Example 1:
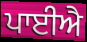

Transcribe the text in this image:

ਪਾਈਐ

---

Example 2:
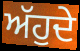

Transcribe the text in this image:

ਅੱਹੁਦੇ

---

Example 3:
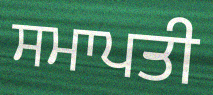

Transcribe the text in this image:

ਸਮਾਪਤੀ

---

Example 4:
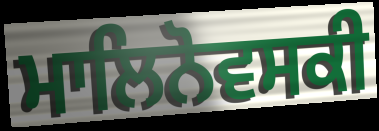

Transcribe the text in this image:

ਮਾਲਿਨੋਵਸਕੀ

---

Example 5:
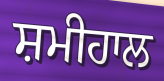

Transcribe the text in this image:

ਸ਼ਮੀਹਾਲ